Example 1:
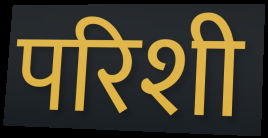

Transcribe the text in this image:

परिशी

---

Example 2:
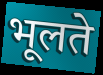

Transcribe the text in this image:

भूलते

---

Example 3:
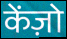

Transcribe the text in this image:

केंज़ो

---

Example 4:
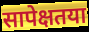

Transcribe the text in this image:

सापेक्षतया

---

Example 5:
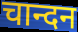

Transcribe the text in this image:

चान्दन